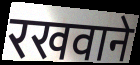
रखवाने